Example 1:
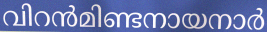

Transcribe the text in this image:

വിറൻമിണ്ടനായനാർ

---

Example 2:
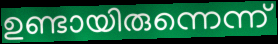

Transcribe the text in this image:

ഉണ്ടായിരുന്നെന്ന്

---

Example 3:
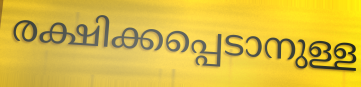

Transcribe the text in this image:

രക്ഷിക്കപ്പെടാനുള്ള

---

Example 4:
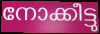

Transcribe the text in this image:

നോക്കീട്ടു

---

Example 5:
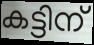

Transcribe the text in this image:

കട്ടിന്